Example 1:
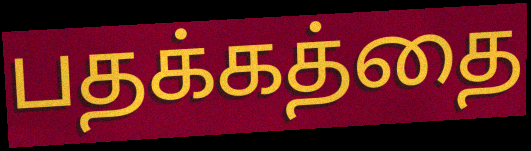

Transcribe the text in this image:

பதக்கத்தை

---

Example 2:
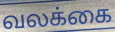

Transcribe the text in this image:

வலக்கை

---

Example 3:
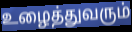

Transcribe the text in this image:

உழைத்துவரும்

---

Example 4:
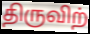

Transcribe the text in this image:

திருவிற்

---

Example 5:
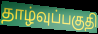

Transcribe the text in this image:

தாழ்வுப்பகுதி